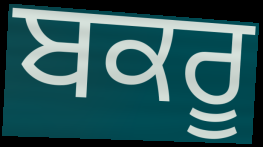
ਬਕਰੂ